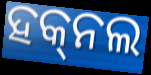
ହକ୍‌ନଲ